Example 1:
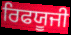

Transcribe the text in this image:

ਰਿਫਯੂਜੀ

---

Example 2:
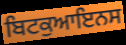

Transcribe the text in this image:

ਬਿਟਕੁਆਇਨਸ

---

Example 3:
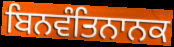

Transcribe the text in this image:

ਬਿਨਵੰਤਿਨਾਨਕ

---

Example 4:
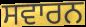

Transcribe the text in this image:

ਸਵਾਰਨ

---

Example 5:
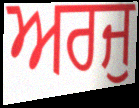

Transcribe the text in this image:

ਅਰਜੁ